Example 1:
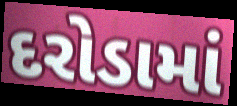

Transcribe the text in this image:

દરોડામાં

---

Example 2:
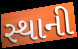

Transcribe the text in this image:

સ્થાની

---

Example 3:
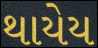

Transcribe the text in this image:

થાયેય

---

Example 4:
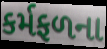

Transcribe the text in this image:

કર્મફળના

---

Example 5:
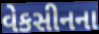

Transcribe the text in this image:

વેકસીનના